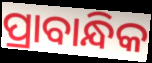
ପ୍ରାବାନ୍ଧିକ